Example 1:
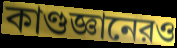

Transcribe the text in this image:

কাণ্ডজ্ঞানেরও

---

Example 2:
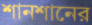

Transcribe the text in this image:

শানশানের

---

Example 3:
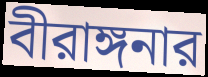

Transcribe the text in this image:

বীরাঙ্গনার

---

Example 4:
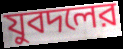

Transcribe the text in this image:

যুবদলের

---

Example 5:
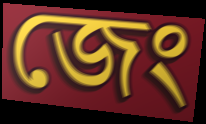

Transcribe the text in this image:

জেং